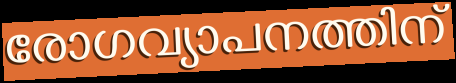
രോഗവ്യാപനത്തിന്